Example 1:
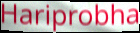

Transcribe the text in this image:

Hariprobha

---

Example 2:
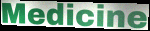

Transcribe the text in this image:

Medicine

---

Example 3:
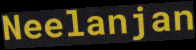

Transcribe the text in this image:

Neelanjan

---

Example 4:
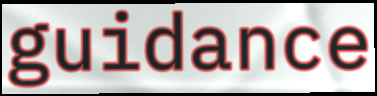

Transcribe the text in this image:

guidance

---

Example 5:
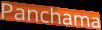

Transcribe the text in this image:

Panchama